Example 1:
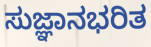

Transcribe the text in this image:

ಸುಜ್ಞಾನಭರಿತ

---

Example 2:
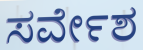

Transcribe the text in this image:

ಸರ್ವೇಶ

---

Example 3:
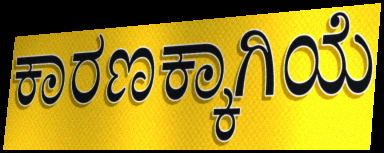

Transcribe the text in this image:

ಕಾರಣಕ್ಕಾಗಿಯೆ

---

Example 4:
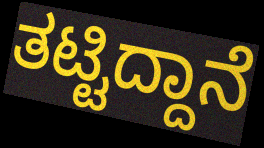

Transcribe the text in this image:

ತಟ್ಟಿದ್ದಾನೆ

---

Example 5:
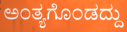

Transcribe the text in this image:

ಅಂತ್ಯಗೊಂಡದ್ದು